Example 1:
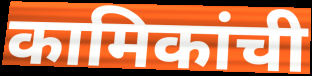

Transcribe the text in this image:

कामिकांची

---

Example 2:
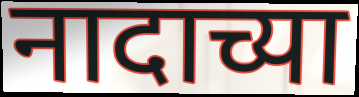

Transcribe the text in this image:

नादाच्या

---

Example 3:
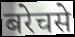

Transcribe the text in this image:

बरेचसे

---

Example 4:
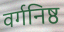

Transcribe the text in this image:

वर्गनिष्ठ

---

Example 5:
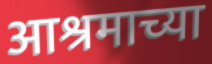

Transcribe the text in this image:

आश्रमाच्या